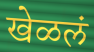
खेळलं